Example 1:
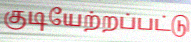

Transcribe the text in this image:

குடியேற்றப்பட்டு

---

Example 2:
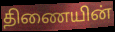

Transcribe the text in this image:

திணையின்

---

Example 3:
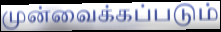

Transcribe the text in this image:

முன்வைக்கப்படும்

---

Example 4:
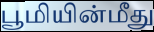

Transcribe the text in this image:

பூமியின்மீது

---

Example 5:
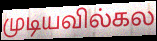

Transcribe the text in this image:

முடியவில்கல